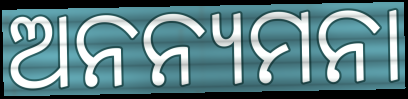
ଅନନ୍ୟମନା